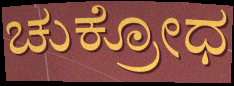
ಚುಕ್ರೋಧ